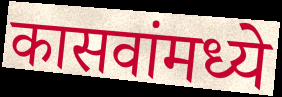
कासवांमध्ये